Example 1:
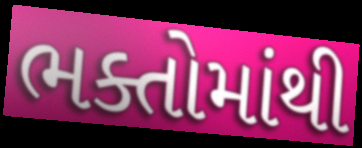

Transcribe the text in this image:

ભક્તોમાંથી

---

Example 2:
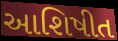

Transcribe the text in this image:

આશિષીત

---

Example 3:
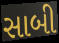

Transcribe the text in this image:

સાબી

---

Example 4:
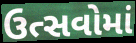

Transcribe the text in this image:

ઉત્સવોમાં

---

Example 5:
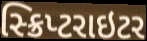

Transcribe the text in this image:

સ્ક્રિપ્ટરાઇટર